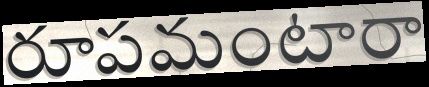
రూపమంటారా